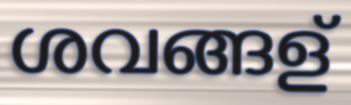
ശവങ്ങള്